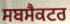
ਸਬਸੈਕਟਰ